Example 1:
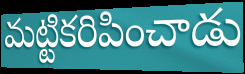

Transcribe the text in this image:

మట్టికరిపించాడు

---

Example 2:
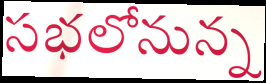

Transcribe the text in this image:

సభలోనున్న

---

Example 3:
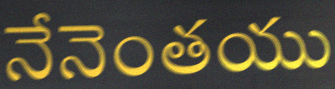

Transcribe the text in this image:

నేనెంతయు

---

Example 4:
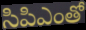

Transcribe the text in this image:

సిపిఎంతో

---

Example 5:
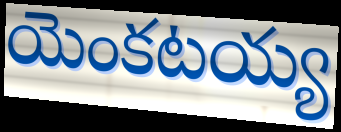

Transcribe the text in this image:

యెంకటయ్య